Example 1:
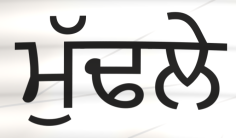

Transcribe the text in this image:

ਮੁੱਢਲੇ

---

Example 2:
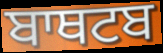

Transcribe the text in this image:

ਬਾਥਟਬ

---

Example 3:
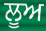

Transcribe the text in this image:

ਲੂਅ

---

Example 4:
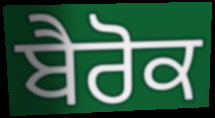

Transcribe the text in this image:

ਬੈਰੋਕ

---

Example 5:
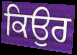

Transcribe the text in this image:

ਕਿਉਰ